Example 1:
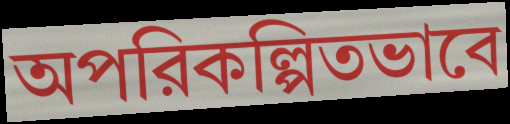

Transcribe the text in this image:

অপরিকল্পিতভাবে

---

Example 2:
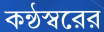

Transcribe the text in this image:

কন্ঠস্বরের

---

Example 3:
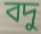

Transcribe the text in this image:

বদু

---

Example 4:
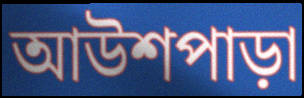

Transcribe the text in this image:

আউশপাড়া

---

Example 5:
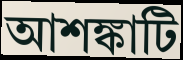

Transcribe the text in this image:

আশঙ্কাটি